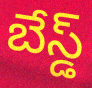
బేస్డ్